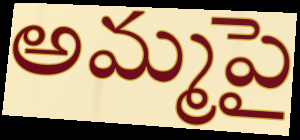
అమ్మపై